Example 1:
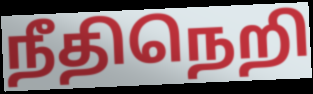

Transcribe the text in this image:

நீதிநெறி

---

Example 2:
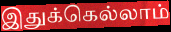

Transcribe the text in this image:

இதுக்கெல்லாம்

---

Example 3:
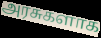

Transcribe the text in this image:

அரசுகளாக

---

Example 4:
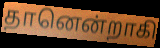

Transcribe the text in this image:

தானென்றாகி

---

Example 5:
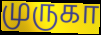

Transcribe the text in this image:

முருகா